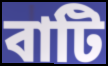
বাটি